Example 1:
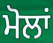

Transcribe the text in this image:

ਮੋਲਾਂ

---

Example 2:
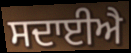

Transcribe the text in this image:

ਸਦਾਈਐ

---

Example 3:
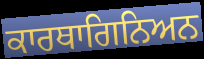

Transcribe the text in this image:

ਕਾਰਥਾਗਿਨਿਅਨ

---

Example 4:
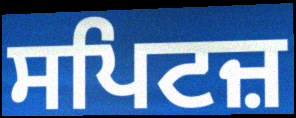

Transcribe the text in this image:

ਸਪਿਟਜ਼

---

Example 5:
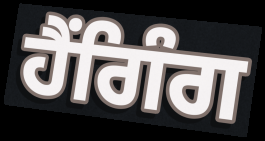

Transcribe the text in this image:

ਹੈਂਗਿੰਗ